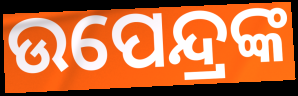
ଉପେନ୍ଦ୍ରଙ୍କ